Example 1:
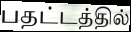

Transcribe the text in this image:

பதட்டத்தில்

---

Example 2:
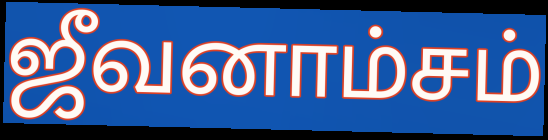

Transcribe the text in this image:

ஜீவனாம்சம்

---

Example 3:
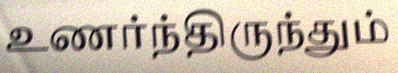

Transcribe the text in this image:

உணர்ந்திருந்தும்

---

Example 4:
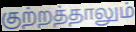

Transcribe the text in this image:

குற்றத்தாலும்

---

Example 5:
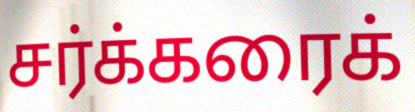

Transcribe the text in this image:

சர்க்கரைக்